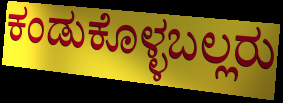
ಕಂಡುಕೊಳ್ಳಬಲ್ಲರು